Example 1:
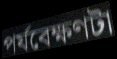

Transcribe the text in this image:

পর্যবেক্ষণটা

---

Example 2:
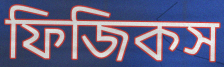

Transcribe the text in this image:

ফিজিকস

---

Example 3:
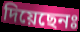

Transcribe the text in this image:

দিয়েছেনঃ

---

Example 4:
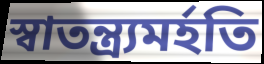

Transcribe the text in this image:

স্বাতন্ত্র্যমর্হতি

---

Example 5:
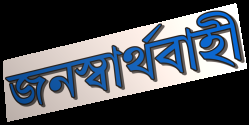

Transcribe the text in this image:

জনস্বার্থবাহী